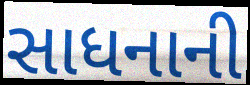
સાધનાની